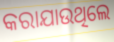
କରାଯାଉଥିଲେ